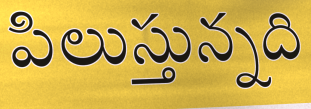
పిలుస్తున్నది